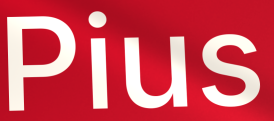
Pius